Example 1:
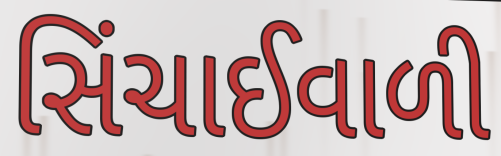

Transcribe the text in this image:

સિંચાઈવાળી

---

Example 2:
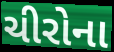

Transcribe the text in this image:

ચીરોના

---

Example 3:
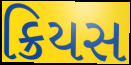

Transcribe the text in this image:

ક્રિયસ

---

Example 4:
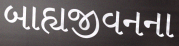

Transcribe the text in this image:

બાહ્યજીવનના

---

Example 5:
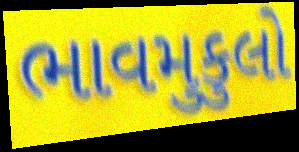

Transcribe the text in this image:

ભાવમુકુલો